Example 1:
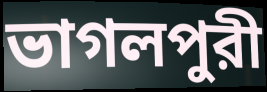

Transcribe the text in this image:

ভাগলপুরী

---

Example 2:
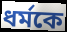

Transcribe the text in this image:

ধর্মকে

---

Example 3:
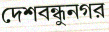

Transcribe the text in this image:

দেশবন্ধুনগর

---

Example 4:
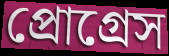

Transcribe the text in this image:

প্রোগ্রেস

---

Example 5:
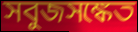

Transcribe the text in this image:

সবুজসঙ্কেত